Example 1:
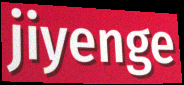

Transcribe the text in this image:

jiyenge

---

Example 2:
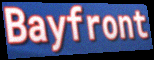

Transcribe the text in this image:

Bayfront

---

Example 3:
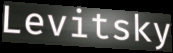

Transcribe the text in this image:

Levitsky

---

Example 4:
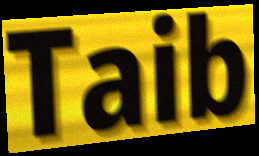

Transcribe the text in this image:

Taib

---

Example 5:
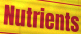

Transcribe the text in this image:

Nutrients